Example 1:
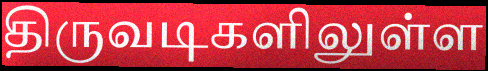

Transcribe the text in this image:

திருவடிகளிலுள்ள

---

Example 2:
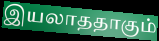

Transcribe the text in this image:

இயலாததாகும்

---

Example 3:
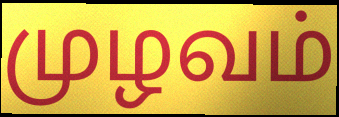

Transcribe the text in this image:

முழவம்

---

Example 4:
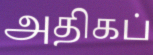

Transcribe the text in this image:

அதிகப்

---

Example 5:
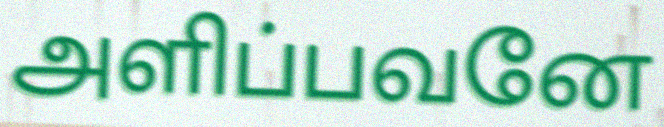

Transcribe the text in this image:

அளிப்பவனே